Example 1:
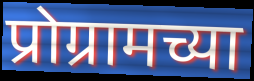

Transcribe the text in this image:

प्रोग्रामच्या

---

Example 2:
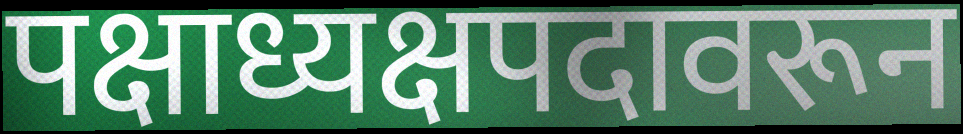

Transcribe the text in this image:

पक्षाध्यक्षपदावरून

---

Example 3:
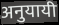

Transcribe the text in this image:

अनुयायी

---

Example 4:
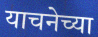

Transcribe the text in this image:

याचनेच्या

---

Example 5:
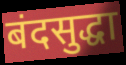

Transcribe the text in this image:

बंदसुद्धा